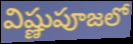
విష్ణుపూజలో